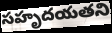
సహృదయతని